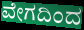
ವೇಗದಿಂದ